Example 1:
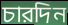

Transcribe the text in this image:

চারদিন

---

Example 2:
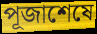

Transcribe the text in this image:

পূজাশেষে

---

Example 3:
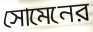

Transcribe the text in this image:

সোমেনের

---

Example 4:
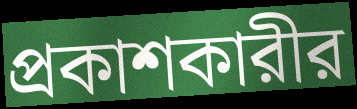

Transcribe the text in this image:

প্রকাশকারীর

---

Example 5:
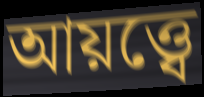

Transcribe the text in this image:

আয়ত্ত্বে